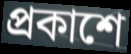
প্রকাশে